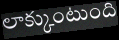
లాక్కుంటుంది